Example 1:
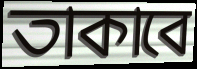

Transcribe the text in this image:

তাকাবে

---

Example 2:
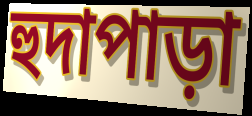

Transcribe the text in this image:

হুদাপাড়া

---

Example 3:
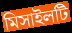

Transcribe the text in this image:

মিসাইলটি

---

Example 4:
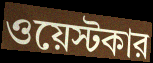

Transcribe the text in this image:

ওয়েস্টকার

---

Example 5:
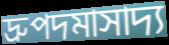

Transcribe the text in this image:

দ্রুপদমাসাদ্য